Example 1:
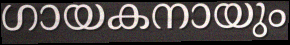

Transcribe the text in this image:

ഗായകനായും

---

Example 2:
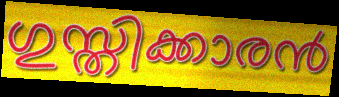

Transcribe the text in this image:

ഗുസ്തിക്കാരൻ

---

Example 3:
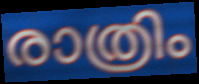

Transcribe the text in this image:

രാത്രിം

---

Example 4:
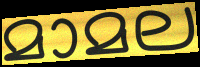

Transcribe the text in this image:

മാമല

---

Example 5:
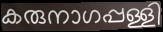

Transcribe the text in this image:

കരുനാഗപ്പള്ളി